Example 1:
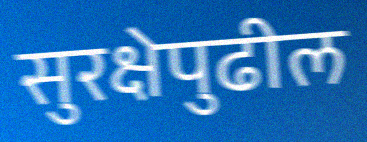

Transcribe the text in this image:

सुरक्षेपुढील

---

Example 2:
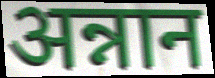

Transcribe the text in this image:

अन्नान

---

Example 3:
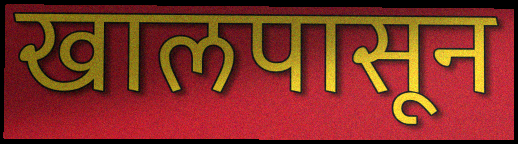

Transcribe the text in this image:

खालपासून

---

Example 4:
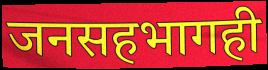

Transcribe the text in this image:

जनसहभागही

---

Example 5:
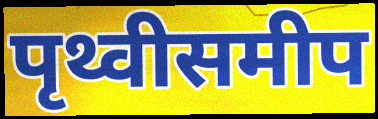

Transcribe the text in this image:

पृथ्वीसमीप